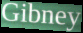
Gibney